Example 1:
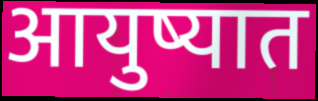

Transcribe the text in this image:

आयुष्यात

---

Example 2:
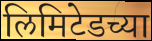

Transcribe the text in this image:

लिमिटेडच्या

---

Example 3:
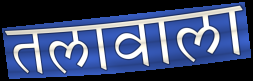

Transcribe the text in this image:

तलावाला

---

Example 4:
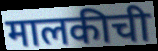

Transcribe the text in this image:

मालकीची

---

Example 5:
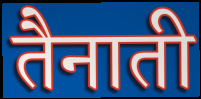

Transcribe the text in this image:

तैनाती